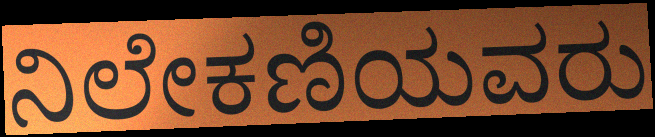
ನಿಲೇಕಣಿಯವರು